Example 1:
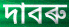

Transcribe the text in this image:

দাবৰু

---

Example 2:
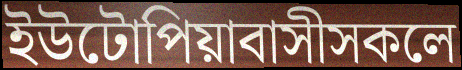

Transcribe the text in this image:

ইউটোপিয়াবাসীসকলে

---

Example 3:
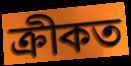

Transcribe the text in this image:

ক্ৰীকত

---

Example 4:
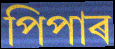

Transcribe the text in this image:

পিপাৰ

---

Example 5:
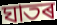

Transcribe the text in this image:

ঘাতৰ